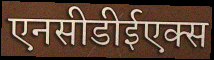
एनसीडीईएक्स